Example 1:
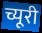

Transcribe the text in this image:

च्यूरी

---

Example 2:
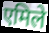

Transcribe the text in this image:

एमिले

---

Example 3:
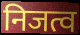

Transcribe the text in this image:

निजत्व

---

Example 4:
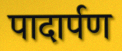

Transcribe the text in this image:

पादार्पण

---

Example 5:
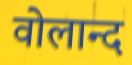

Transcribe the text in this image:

वोलान्द